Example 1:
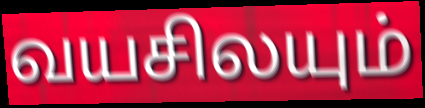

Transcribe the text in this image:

வயசிலயும்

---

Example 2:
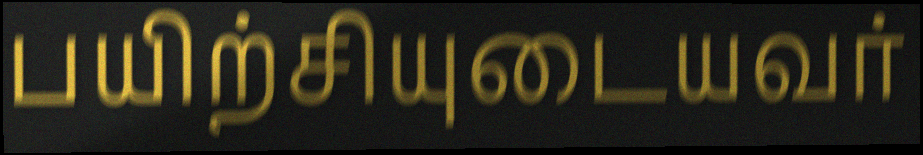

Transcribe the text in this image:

பயிற்சியுடையவர்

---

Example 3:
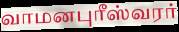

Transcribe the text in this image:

வாமனபுரீஸ்வரர்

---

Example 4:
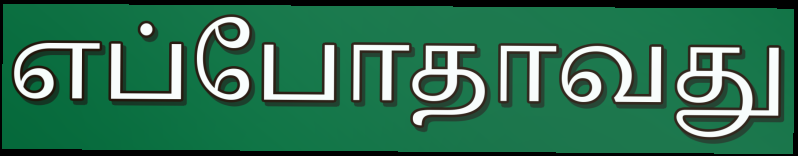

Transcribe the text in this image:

எப்போதாவது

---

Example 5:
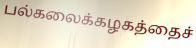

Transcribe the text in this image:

பல்கலைக்கழகத்தைச்